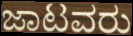
ಜಾಟವರು